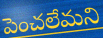
పెంచలేమని